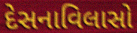
દેસનાવિલાસો